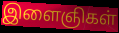
இளைஞிகள்